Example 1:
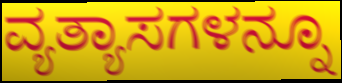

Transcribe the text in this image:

ವ್ಯತ್ಯಾಸಗಳನ್ನೂ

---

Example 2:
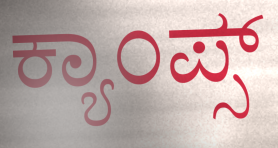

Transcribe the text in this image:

ಕ್ಯಾಂಪ್ಸ್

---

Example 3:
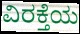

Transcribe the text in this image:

ವಿರಕ್ತೆಯ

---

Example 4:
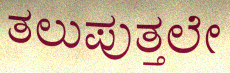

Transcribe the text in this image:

ತಲುಪುತ್ತಲೇ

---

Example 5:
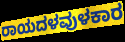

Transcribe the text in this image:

ರಾಯದಳವುಳಕಾರ